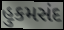
હુકમસંદ